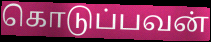
கொடுப்பவன்